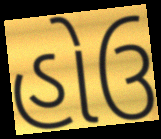
હોઉ